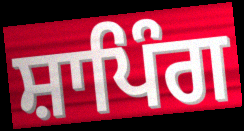
ਸ਼ਾਪਿੰਗ